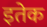
इतेक